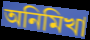
অনিমিখা